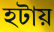
হটায়